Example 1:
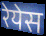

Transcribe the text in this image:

रेयेस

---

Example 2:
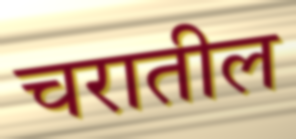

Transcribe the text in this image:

चरातील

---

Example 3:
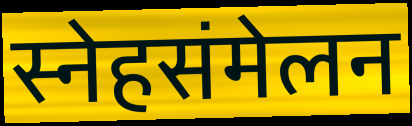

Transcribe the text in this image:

स्नेहसंमेलन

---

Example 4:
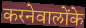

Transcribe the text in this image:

करनेवालोंके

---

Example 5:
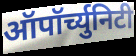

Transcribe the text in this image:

ऑपॉर्च्युनिटी